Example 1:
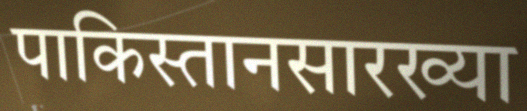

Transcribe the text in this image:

पाकिस्तानसारख्या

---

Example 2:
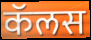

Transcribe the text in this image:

कॅलस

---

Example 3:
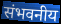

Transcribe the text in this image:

संभवनीय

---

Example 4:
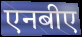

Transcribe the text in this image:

एनबीए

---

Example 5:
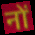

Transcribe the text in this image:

नों